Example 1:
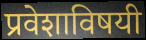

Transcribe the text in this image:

प्रवेशाविषयी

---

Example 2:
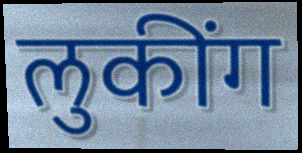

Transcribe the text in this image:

लुकींग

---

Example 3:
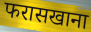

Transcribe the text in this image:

फरासखाना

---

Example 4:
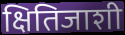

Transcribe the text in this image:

क्षितिजाशी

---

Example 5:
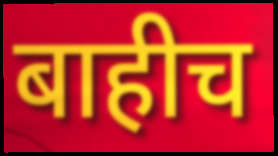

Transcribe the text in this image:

बाहीच